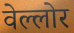
वेल्लोर